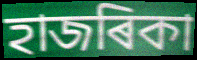
হাজৰিকা